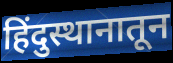
हिंदुस्थानातून